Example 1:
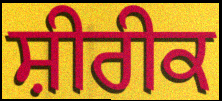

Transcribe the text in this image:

ਸ਼ੀਰੀਕ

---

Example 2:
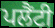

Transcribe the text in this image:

ਪਲੈਂਟੀ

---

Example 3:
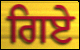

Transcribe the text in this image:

ਗਿਏ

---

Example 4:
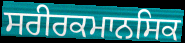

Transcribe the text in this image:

ਸਰੀਰਕਮਾਨਸਿਕ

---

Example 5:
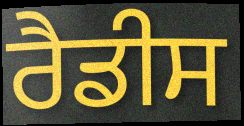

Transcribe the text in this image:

ਰੈਡੀਸ